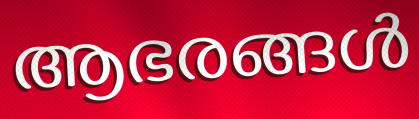
ആഭരങ്ങൾ